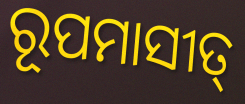
ରୂପମାସୀତ୍